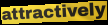
attractively